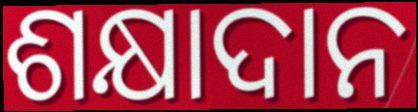
ଶକ୍ଷାଦାନ